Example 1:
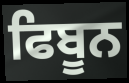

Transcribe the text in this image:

ਫਿਬੂਨ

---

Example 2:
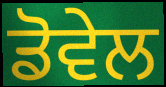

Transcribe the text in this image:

ਡੋਵੇਲ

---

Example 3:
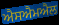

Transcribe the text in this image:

ਐਸਐਮਐਲ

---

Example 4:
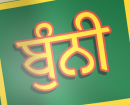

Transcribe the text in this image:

ਬੁੰਨੀ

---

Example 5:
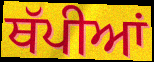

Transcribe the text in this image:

ਥੱਪੀਆਂ